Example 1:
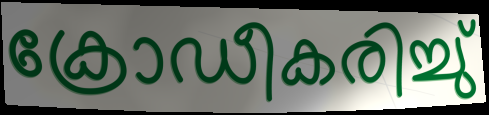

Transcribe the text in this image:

ക്രോഡീകരിച്ചു്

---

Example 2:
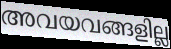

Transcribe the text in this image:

അവയവങ്ങളില്ല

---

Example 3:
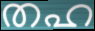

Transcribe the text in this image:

തഹ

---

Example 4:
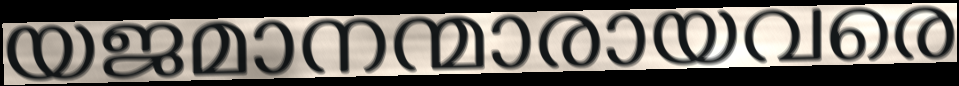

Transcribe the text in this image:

യജമാനന്മാരായവരെ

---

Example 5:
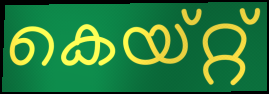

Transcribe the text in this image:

കെയ്റ്റ്